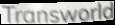
Transworld